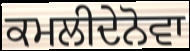
ਕਮਲੀਦੇਨੋਵਾ